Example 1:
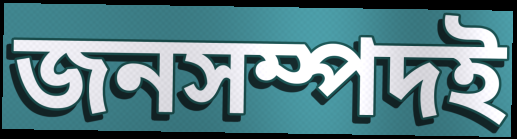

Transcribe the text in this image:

জনসম্পদই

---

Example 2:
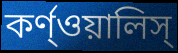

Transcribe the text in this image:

কর্ণ্ওয়ালিস্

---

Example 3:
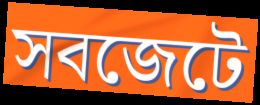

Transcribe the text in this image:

সবজেটে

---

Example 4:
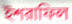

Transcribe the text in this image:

ইশরাফিল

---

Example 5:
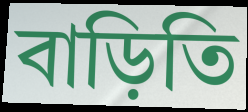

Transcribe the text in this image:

বাড়িতি